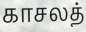
காசலத்